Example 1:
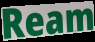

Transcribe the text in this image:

Ream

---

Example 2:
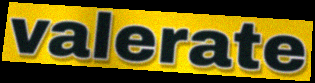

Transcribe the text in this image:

valerate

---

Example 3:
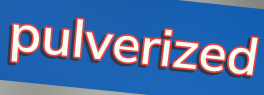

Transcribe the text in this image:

pulverized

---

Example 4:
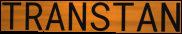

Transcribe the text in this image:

TRANSTAN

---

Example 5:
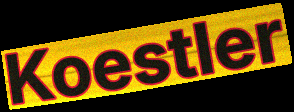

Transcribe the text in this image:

Koestler